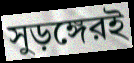
সুড়ঙ্গেরই